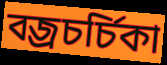
বজ্রচর্চিকা